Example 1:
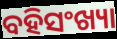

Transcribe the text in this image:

ବହିସଂଖ୍ୟା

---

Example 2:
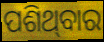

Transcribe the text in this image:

ପଶିଥ୍‌ବାର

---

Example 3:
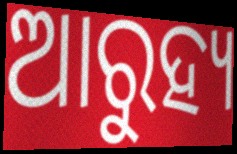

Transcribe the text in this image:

ଆରୁହ୍ୟ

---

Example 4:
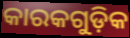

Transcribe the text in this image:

କାରକଗୁଡ଼ିକ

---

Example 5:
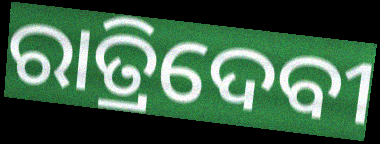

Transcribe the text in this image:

ରାତ୍ରିଦେବୀ